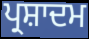
ਪ੍ਰਸ਼ਾਦਮ